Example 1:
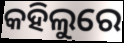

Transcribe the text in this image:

କହିଲୁରେ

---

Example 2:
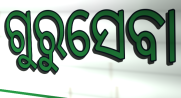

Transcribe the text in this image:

ଗୁରୁସେବା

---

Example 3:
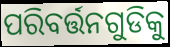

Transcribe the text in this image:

ପରିବର୍ତ୍ତନଗୁଡିକୁ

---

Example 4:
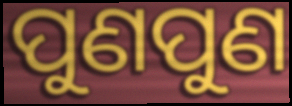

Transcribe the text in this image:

ପୁଣପୁଣ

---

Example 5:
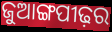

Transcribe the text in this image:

ଜୁଆଙ୍ଗପୀଢ଼ର